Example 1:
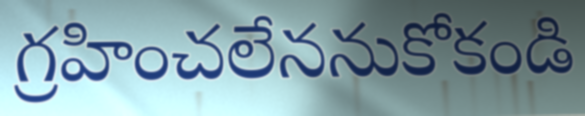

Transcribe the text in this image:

గ్రహించలేననుకోకండి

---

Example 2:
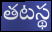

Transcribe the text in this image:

తటస్థ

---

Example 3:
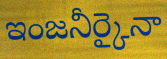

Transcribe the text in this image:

ఇంజనీర్కైనా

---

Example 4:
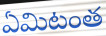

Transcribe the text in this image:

ఏమిటంత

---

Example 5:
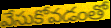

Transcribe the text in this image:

వేసుకోవడంతో